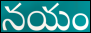
నయం